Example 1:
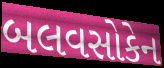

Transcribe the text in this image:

બલવસોકેન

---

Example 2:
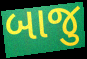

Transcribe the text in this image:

બાજુ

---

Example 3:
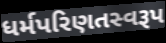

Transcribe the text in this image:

ધર્મપરિણતસ્વરૂપ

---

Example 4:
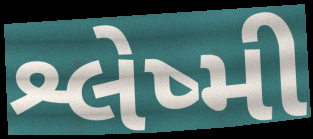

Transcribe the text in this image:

શ્લેષ્મી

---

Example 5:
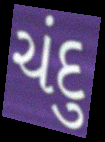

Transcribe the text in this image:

ચંદુ